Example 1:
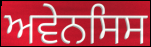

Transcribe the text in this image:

ਅਵੇਨਸਿਸ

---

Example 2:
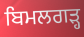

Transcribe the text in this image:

ਬਿਮਲਗੜ੍ਹ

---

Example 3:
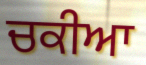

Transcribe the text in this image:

ਚਕੀਆ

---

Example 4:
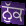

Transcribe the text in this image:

ਨੁੱਕ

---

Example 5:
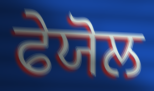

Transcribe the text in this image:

ਫੇਯੋਲ